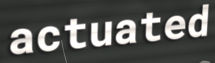
actuated